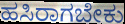
ಹಸಿರಾಗಬೇಕು